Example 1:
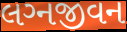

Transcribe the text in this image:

લગ્‍નજીવન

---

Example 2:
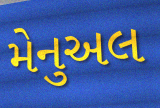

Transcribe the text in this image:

મેનુઅલ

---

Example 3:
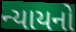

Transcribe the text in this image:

ન્યાયનો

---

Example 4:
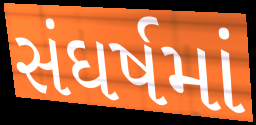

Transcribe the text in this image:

સંઘર્ષમાં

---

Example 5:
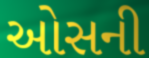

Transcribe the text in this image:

ઓસની